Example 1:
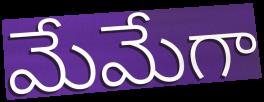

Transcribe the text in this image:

మేమేగా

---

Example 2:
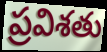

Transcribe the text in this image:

ప్రవిశతు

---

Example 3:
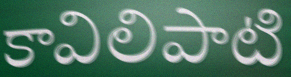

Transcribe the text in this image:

కావిలిపాటి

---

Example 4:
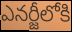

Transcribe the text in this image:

ఎనర్జీలోకి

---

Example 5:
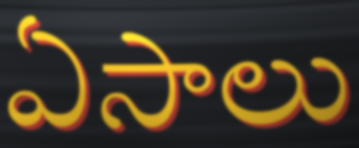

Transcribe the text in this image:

ఏసాలు